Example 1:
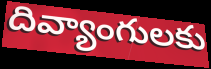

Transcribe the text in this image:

దివ్యాంగులకు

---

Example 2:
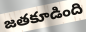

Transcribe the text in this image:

జతకూడింది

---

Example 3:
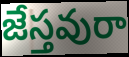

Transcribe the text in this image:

జేస్తవురా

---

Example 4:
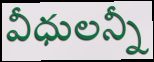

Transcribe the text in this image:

వీధులన్నీ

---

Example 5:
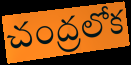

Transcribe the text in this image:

చంద్రలోక